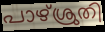
പാഴ്ശ്രുതി